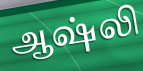
ஆஷ்லி